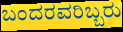
ಬಂದರವರಿಬ್ಬರು